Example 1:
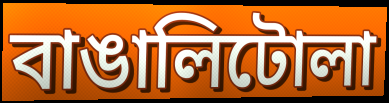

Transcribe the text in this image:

বাঙালিটোলা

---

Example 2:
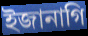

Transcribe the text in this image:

ইজানাগি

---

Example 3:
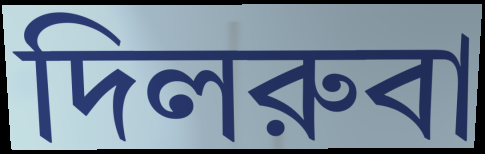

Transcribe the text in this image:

দিলরুবা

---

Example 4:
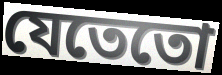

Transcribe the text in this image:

যেতেতো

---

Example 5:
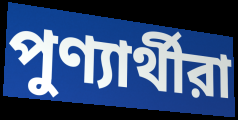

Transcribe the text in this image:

পুণ্যার্থীরা